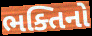
ભક્તિનો